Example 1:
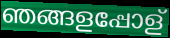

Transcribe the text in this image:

ഞങ്ങളപ്പോള്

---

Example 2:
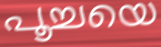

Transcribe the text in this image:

പൂച്ചയെ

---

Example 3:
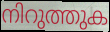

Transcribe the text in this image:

നിറുത്തുക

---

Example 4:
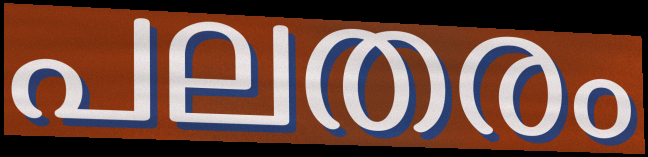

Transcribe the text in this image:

പലതരം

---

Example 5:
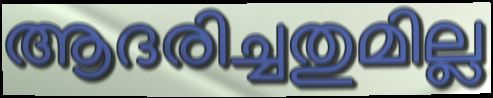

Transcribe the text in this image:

ആദരിച്ചതുമില്ല